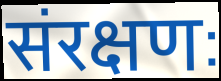
संरक्षणः